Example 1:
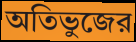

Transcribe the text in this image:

অতিভুজের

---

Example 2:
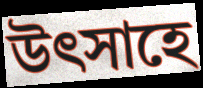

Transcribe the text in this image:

উত্‍সাহে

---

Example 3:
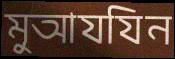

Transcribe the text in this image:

মুআযযিন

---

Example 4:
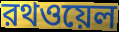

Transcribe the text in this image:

রথওয়েল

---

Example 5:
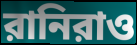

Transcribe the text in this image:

রানিরাও